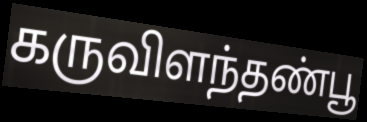
கருவிளந்தண்பூ